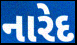
નારેદ